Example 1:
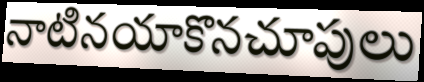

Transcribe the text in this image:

నాటినయాకొనచూపులు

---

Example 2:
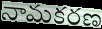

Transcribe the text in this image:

నామకరణ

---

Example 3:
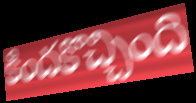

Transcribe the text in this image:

కిందకొచ్చింది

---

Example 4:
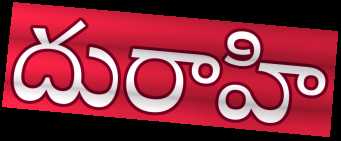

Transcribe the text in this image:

దురాహి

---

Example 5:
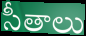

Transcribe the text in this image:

సీతాలు